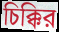
চিক্কির